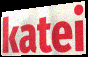
katei